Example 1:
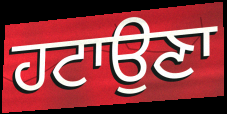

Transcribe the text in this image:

ਹਟਾਉਣਾ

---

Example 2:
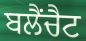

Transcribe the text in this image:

ਬਲੈਂਚੈਟ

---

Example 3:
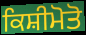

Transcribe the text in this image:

ਕਿਸ਼ੀਮੋਤੋ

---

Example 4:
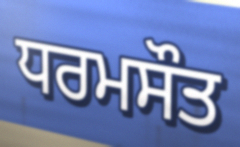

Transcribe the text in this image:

ਧਰਮਸੌਤ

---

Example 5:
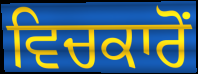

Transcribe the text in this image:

ਵਿਚਕਾਰੋਂ